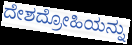
ದೇಶದ್ರೋಹಿಯನ್ನು